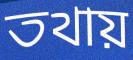
তথায়